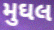
મુઘલ